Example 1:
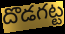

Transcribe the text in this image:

దొడగట్ట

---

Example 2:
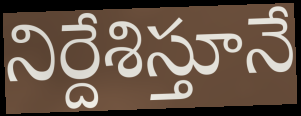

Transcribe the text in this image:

నిర్దేశిస్తూనే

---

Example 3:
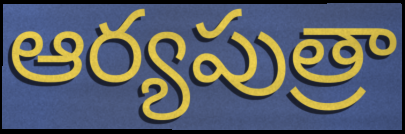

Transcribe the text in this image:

ఆర్యపుత్రా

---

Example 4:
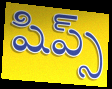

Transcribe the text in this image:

షిప్స్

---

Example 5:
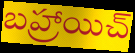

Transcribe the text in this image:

బహ్రాయిచ్